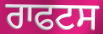
ਰਾਫਟਸ